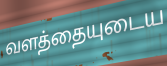
வளத்தையுடைய